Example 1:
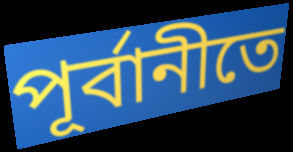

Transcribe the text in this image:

পূর্বানীতে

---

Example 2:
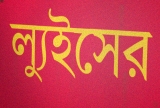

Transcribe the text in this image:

ল্যুইসের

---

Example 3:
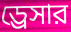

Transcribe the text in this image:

ড্রেসার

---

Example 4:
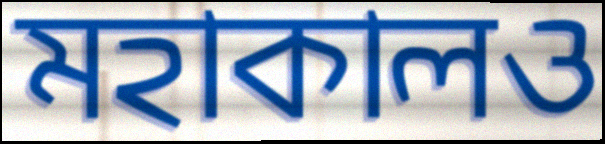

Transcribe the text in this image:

মহাকালও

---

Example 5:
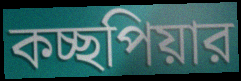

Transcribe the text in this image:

কচ্ছপিয়ার